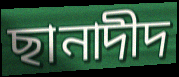
ছানাদীদ